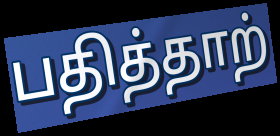
பதித்தாற்